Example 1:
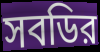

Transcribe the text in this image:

সবডির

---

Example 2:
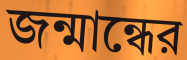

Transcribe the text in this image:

জন্মান্ধের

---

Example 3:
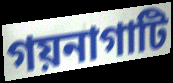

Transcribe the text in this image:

গয়নাগাটি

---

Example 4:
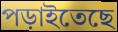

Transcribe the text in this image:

পড়াইতেছে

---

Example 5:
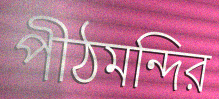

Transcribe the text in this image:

পীঠমন্দির